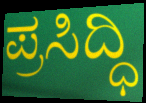
ಪ್ರಸಿದ್ಧಿ